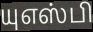
யுஎஸ்பி